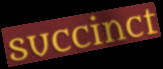
succinct